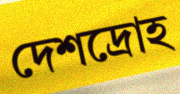
দেশদ্রোহ